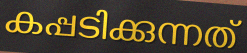
കപ്പടിക്കുന്നത്